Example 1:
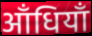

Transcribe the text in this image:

आँधियाँ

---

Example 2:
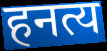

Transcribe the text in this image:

हनत्य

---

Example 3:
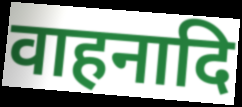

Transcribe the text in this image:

वाहनादि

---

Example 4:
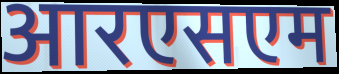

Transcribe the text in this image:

आरएसएम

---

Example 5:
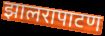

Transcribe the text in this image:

झालरापाटण